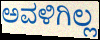
ಅವಳಿಗಿಲ್ಲ